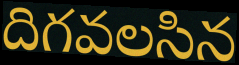
దిగవలసిన